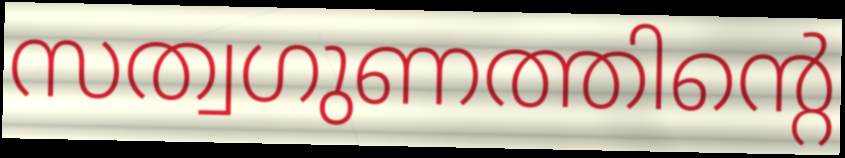
സത്വഗുണത്തിന്റെ